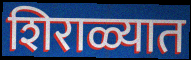
शिराळ्यात